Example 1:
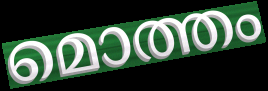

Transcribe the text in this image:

മൊത്തം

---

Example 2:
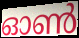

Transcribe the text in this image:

ഓൺ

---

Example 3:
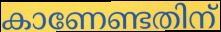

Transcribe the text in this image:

കാണേണ്ടതിന്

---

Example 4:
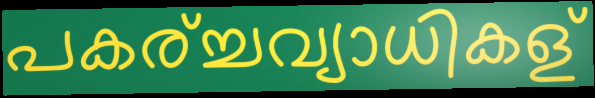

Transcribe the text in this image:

പകര്ച്ചവ്യാധികള്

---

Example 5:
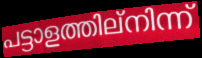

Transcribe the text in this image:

പട്ടാളത്തില്നിന്ന്